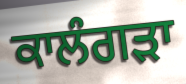
ਕਾਲੰਗੜਾ